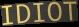
IDIOT